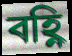
বহ্ণি